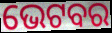
ଭେଟବର